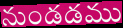
నుండడము